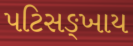
પટિસઙ્ખાય